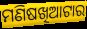
ମଣିଷଖିଆଟାର